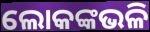
ଲୋକଙ୍କଭଳି